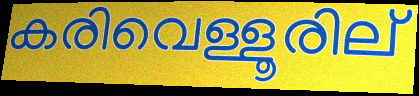
കരിവെള്ളൂരില്